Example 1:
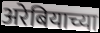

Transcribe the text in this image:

अरेबियाच्या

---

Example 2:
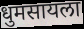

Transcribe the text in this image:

धुमसायला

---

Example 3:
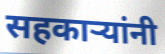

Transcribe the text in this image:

सहकाऱ्यांनी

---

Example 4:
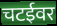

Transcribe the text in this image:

चटईवर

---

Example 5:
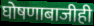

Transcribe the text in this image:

घोषणाबाजीही